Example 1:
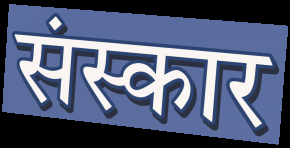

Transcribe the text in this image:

संस्‍कार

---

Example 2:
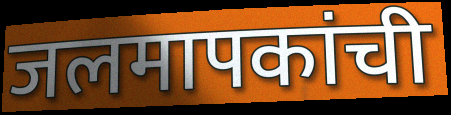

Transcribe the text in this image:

जलमापकांची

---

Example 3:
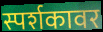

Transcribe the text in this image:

स्पर्शकावर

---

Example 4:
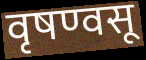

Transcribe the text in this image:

वृषण्वसू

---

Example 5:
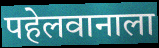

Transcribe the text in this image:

पहेलवानाला